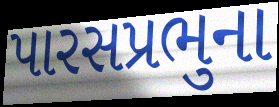
પારસપ્રભુના